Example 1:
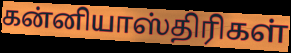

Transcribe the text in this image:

கன்னியாஸ்திரிகள்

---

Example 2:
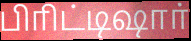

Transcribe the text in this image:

பிரிட்டிஷார்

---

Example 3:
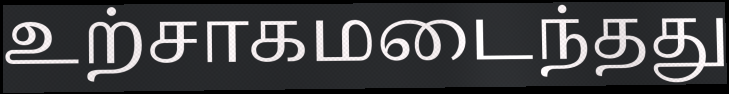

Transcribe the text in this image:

உற்சாகமடைந்தது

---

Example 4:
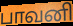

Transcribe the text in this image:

பாவனி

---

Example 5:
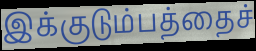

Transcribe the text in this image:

இக்குடும்பத்தைச்